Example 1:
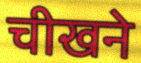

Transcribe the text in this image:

चीखने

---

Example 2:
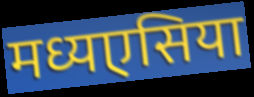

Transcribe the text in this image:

मध्यएसिया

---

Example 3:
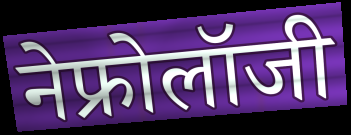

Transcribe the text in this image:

नेफ्रोलॉजी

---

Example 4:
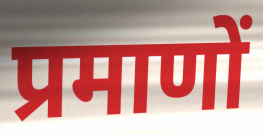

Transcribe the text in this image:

प्रमाणों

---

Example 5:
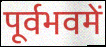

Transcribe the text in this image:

पूर्वभवमें